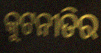
କୁଟନୀତିର